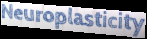
Neuroplasticity